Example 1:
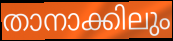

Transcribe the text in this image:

താനാക്കിലും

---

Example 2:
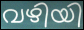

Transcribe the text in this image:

വഴിയി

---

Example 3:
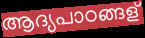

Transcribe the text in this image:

ആദ്യപാഠങ്ങള്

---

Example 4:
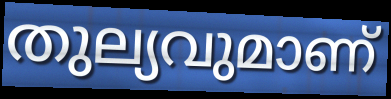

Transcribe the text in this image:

തുല്യവുമാണ്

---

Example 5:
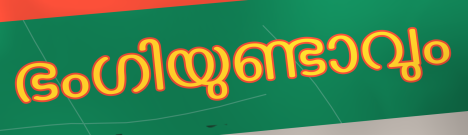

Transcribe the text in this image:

ഭംഗിയുണ്ടാവും